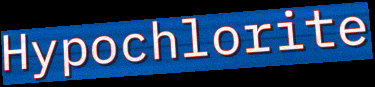
Hypochlorite